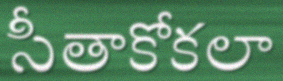
సీతాకోకలా